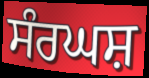
ਸੰਰਘਸ਼